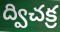
ద్విచక్ర